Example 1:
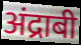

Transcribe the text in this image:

अंद्राबी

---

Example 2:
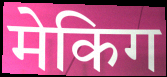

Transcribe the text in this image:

मेकिग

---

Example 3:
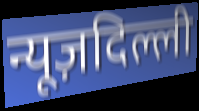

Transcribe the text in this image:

न्यूज़दिल्ली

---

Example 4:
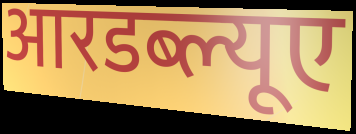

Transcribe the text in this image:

आरडब्ल्यूए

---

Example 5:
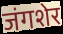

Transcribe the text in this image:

जंगशेर